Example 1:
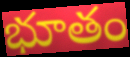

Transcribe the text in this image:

భూతం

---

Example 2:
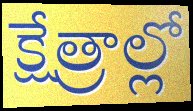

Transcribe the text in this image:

క్షేత్రాల్లో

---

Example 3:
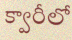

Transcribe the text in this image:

క్వారీలో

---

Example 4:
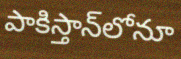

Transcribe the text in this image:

పాకిస్తాన్‌లోనూ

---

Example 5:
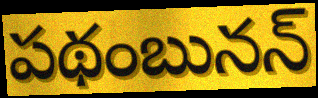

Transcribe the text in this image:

పథంబునన్